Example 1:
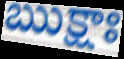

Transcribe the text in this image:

ఋక్షాః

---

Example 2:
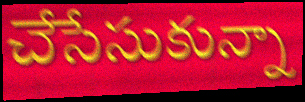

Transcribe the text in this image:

చేసేసుకున్నా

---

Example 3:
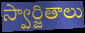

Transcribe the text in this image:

స్వార్జితాలు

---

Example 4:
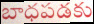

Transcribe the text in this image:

బాధపడకు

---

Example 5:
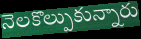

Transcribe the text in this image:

నెలకొల్పుకున్నారు